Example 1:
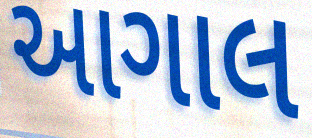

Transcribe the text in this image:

આગાલ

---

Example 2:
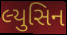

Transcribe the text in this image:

લ્યુસિન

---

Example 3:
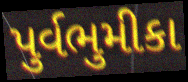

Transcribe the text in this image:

પુર્વભુમીકા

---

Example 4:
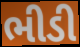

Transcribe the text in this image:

ભીડી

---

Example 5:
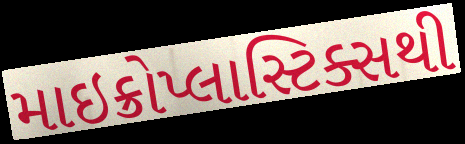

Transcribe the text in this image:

માઇક્રોપ્લાસ્ટિક્સથી